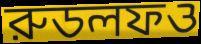
রুডলফও